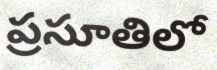
ప్రసూతిలో